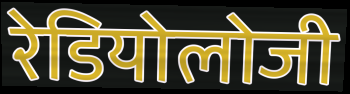
रेडियोलोजी